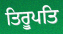
ਤਿਰੂਪਤਿ